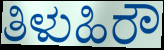
ತಿಳುಹಿರೌ